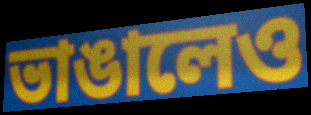
ভাঙালেও